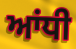
ਆਂਧੀ